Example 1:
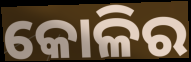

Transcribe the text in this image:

କୋଳିର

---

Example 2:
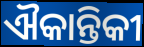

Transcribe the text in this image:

ଐକାନ୍ତିକୀ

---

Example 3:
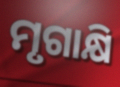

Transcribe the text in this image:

ମୃଗାକ୍ଷି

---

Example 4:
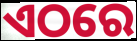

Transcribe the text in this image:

ଏଠରେ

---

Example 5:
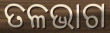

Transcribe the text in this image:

ତଳଭାଗ